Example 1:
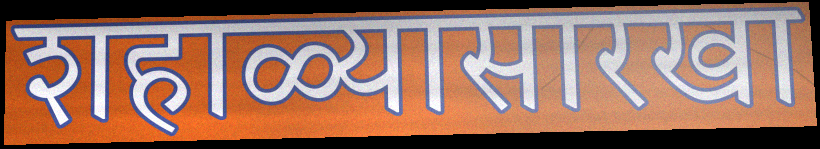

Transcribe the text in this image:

शहाळ्यासारखा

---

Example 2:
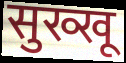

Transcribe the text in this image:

सुख्खू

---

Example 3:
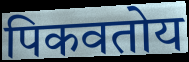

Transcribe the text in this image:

पिकवतोय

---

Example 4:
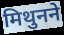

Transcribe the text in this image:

मिथुनने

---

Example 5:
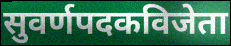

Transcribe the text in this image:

सुवर्णपदकविजेता